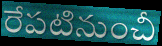
రేపటినుంచీ